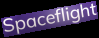
Spaceflight